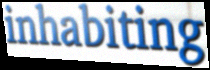
inhabiting